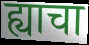
ह्याचा